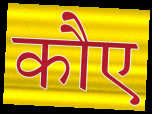
कौए